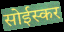
सोईस्कर